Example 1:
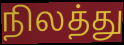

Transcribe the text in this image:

நிலத்து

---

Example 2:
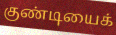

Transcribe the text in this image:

குண்டியைக்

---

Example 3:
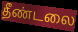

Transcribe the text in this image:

தீண்டலை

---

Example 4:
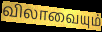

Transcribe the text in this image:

விலாவையும்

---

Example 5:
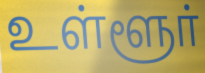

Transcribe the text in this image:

உள்ளூர்